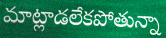
మాట్లాడలేకపోతున్నా